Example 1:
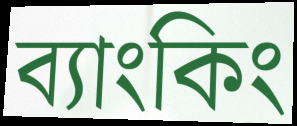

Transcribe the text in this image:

ব্যাংকিং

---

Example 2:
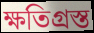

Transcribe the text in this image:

ক্ষতিগ্রস্ত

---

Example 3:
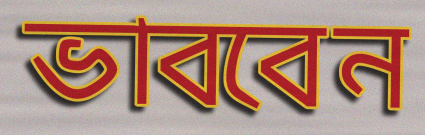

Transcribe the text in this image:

ভাববেন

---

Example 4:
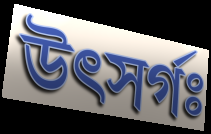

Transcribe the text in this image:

উৎসর্গঃ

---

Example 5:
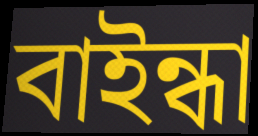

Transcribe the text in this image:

বাইন্ধা